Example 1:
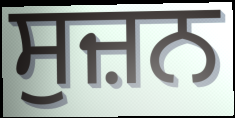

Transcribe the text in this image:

ਸੁਜ਼ਨ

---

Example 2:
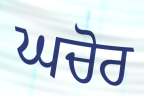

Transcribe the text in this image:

ਘਚੋਰ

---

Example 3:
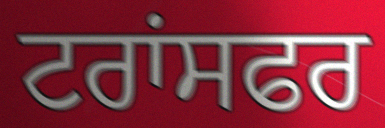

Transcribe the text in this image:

ਟਰਾਂਸਫਰ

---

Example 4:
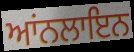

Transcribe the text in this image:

ਆਂਨਲਾਇਨ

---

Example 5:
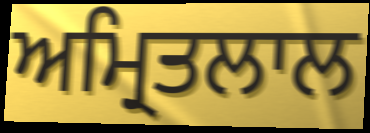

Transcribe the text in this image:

ਅਮ੍ਰਿਤਲਾਲ